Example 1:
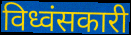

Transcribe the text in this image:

विध्वंसकारी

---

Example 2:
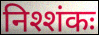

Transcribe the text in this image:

निश्शंकः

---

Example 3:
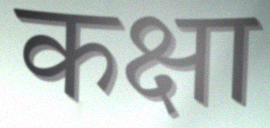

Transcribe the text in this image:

कक्षा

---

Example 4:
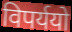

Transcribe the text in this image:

विपर्ययो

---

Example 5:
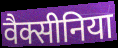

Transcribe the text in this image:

वैक्सीनिया